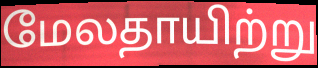
மேலதாயிற்று